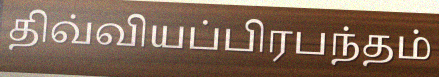
திவ்வியப்பிரபந்தம்